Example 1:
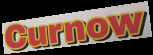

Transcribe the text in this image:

Curnow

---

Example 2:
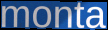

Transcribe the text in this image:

monta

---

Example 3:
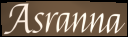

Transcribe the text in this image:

Asranna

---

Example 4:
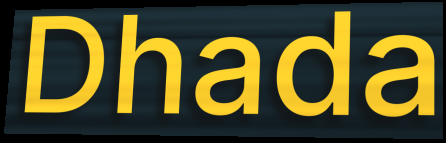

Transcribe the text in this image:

Dhada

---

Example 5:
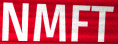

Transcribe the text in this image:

NMFT